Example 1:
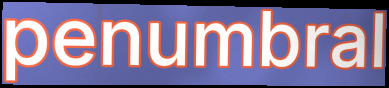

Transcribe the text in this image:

penumbral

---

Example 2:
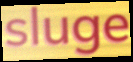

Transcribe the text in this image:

sluge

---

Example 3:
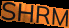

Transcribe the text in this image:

SHRM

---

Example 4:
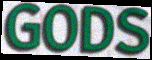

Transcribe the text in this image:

GODS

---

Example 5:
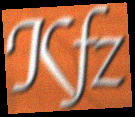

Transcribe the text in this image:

Kfz